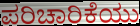
ಪರಿಚಾರಿಕೆಯು